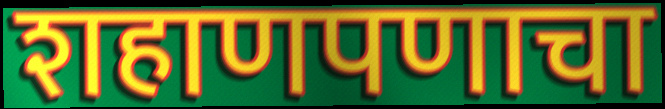
शहाणपणाचा